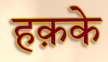
हक़के